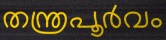
തന്ത്രപൂർവം